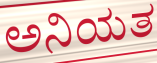
ಅನಿಯತ